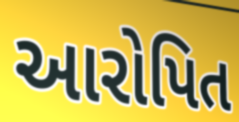
આરોપિત